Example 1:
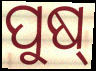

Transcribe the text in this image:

ପୁଷ୍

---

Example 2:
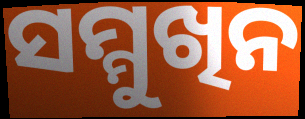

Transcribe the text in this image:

ସମ୍ମୁଖିନ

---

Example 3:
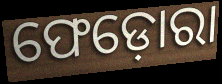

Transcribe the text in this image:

ଫେଡ଼ୋରା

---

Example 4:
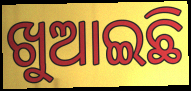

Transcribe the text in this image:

ଖୁଆଇଛି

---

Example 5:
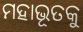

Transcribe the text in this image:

ମହାଭୂତକୁ